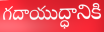
గదాయుద్ధానికి